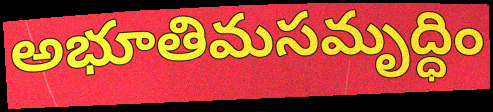
అభూతిమసమృద్ధిం